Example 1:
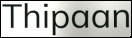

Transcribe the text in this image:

Thipaan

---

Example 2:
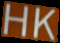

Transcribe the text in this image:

HK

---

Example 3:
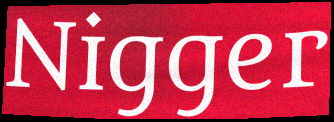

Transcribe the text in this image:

Nigger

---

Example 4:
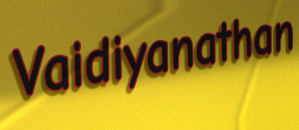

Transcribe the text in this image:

Vaidiyanathan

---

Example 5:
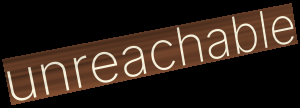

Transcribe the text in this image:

unreachable